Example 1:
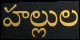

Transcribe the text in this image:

హల్లుల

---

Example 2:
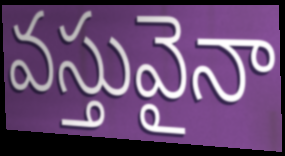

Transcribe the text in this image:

వస్తువైనా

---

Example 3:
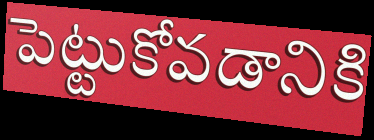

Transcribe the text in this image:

పెట్టుకోవడానికి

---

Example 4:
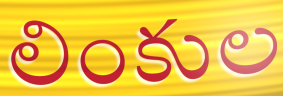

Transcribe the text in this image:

లింకుల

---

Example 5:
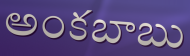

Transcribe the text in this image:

అంకబాబు